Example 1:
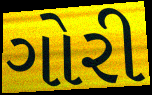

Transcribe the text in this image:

ગોરી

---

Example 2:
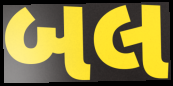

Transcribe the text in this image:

બલ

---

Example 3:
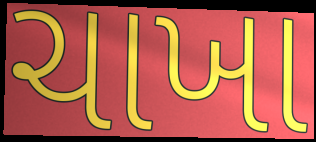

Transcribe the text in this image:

ચાખા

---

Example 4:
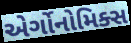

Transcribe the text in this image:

એર્ગોનોમિક્સ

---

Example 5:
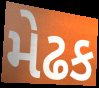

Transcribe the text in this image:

મેઢક